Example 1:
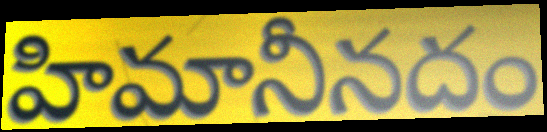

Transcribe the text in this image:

హిమానీనదం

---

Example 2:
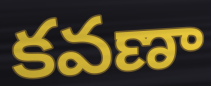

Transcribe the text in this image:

కవణా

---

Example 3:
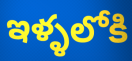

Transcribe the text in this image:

ఇళ్ళలోకి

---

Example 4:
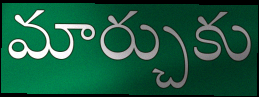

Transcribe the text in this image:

మార్చుకు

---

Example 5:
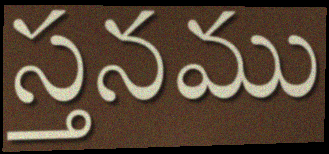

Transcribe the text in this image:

స్తనము